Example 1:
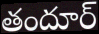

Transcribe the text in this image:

తందూర్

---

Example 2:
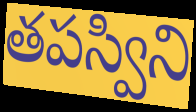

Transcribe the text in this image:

తపస్విని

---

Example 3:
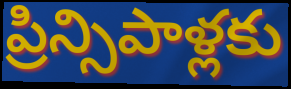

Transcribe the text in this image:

ప్రిన్సిపాళ్లకు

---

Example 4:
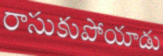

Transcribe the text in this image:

రాసుకుపోయాడు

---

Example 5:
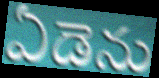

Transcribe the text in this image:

ఏడెను